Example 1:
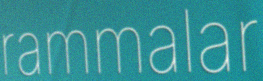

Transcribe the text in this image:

rammalar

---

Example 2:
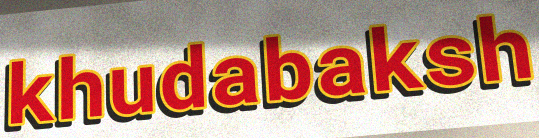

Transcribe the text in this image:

khudabaksh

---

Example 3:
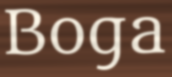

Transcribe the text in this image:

Boga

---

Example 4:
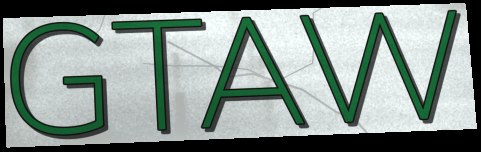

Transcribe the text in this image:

GTAW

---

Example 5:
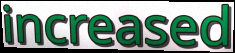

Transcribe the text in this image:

increased